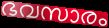
ഭവസാരം